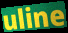
uline